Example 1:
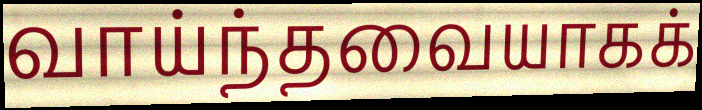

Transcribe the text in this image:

வாய்ந்தவையாகக்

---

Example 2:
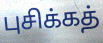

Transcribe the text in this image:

புசிக்கத்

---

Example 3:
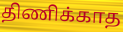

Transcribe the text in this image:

திணிக்காத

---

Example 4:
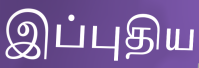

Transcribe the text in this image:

இப்புதிய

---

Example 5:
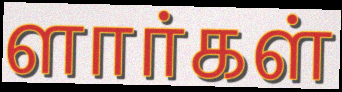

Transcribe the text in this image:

ளார்கள்